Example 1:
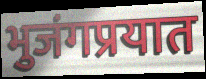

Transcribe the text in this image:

भुजंगप्रयात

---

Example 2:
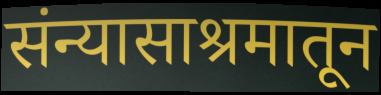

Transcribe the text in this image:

संन्यासाश्रमातून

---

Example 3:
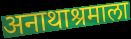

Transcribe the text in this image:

अनाथाश्रमाला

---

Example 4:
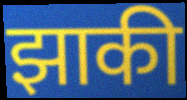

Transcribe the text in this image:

झाकी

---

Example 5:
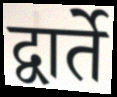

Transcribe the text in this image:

द्वार्ते